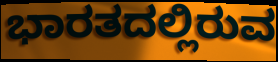
ಭಾರತದಲ್ಲಿರುವ